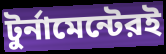
টুর্নামেন্টেরই